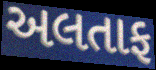
અલતાફ